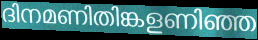
ദിനമണിതിങ്കളണിഞ്ഞ